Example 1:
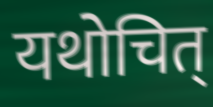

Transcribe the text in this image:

यथोचित्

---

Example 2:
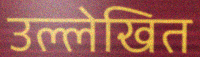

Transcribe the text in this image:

उल्‍लेखित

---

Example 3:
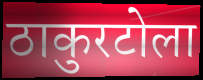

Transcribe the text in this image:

ठाकुरटोला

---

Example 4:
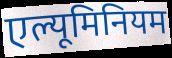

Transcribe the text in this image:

एल्यूमिनियम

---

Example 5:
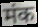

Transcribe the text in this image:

मंक